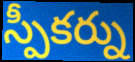
స్పీకర్ను